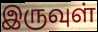
இருவுள்